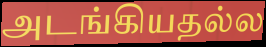
அடங்கியதல்ல